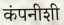
कंपनीशी